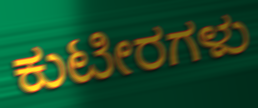
ಕುಟೀರಗಳು